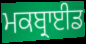
ਮਕਬ੍ਰਾਈਡ